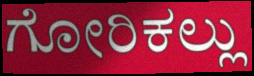
ಗೋರಿಕಲ್ಲು